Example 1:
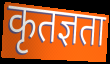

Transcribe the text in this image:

कृतज्ञता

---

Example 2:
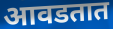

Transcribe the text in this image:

आवडतात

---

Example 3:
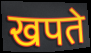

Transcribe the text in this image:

खपते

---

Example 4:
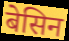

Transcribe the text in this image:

बेसिन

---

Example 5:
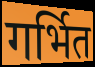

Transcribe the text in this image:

गर्भित